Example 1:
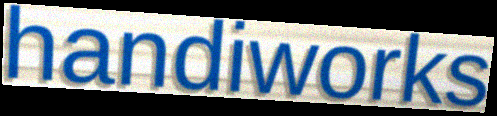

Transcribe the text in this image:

handiworks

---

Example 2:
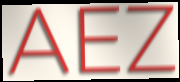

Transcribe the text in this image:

AEZ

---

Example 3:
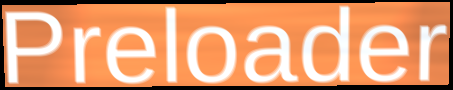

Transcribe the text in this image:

Preloader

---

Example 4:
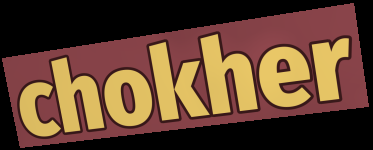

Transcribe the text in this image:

chokher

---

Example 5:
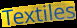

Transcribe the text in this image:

Textiles